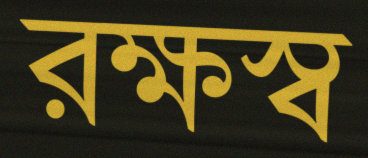
রক্ষস্ব